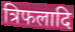
त्रिफलादि